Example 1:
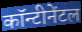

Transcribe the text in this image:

कॉन्टीनेंटल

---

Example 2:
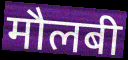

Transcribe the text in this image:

मौलबी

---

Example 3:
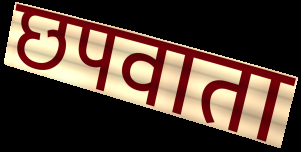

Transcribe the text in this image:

छपवाता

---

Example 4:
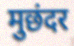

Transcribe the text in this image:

मुछंदर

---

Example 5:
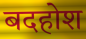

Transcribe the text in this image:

बदहोश